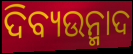
ଦିବ୍ୟଉନ୍ମାଦ